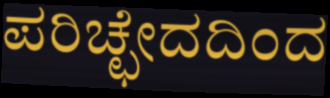
ಪರಿಚ್ಛೇದದಿಂದ